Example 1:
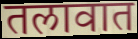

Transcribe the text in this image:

तलावात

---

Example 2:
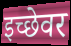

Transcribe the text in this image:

इच्छेवर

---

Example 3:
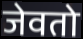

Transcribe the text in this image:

जेवतो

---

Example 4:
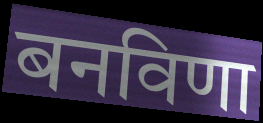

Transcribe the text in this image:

बनविणा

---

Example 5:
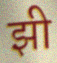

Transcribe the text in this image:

झी